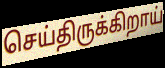
செய்திருக்கிறாய்